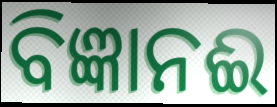
ବିଜ୍ଞାନଈ